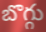
బొగ్గు